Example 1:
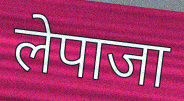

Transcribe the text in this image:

लेपाजा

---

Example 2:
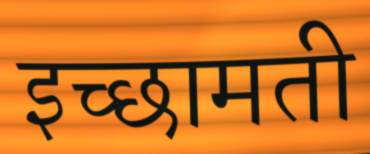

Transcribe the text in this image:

इच्छामती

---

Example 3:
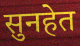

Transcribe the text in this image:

सुनहेत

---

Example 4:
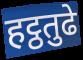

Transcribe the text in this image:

हट्ठतुढे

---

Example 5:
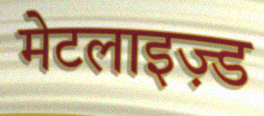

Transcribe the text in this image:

मेटलाइज़्ड